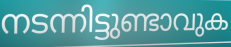
നടന്നിട്ടുണ്ടാവുക